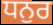
ਧਨੁਰ